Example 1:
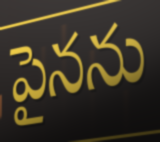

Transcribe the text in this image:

పైనను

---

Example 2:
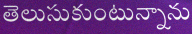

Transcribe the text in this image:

తెలుసుకుంటున్నాను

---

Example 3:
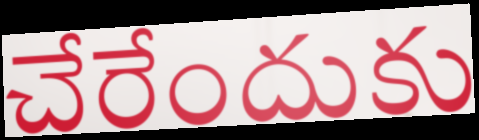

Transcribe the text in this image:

చేరేందుకు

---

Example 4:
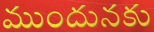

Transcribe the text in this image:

ముందునకు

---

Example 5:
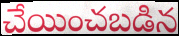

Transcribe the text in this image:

చేయించబడిన